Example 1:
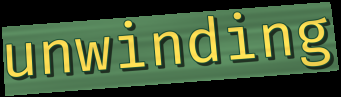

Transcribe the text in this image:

unwinding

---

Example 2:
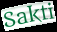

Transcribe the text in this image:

Sakti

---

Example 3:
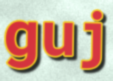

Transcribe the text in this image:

guj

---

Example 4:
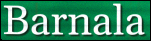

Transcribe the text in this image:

Barnala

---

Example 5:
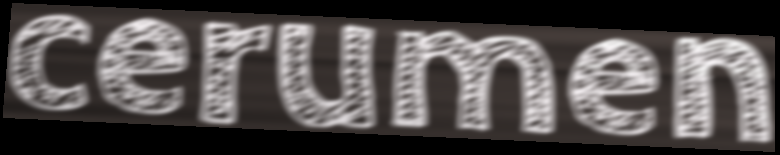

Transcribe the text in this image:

cerumen